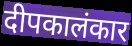
दीपकालंकार